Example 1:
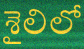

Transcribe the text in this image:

శైలిలో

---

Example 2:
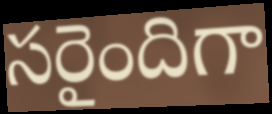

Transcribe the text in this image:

సరైందిగా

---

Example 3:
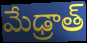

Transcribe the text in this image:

మేఢ్రాత్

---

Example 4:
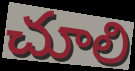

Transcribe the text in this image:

చూలి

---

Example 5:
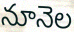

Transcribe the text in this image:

నూనెల